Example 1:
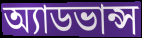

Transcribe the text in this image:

অ্যাডভান্স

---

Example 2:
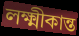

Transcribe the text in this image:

লক্ষ্মীকান্ত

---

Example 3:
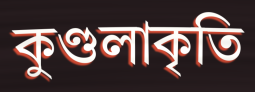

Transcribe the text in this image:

কুণ্ডলাকৃতি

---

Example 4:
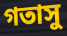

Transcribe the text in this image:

গতাসু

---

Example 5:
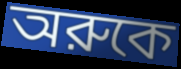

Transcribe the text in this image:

অরুকে